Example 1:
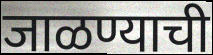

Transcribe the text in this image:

जाळण्याची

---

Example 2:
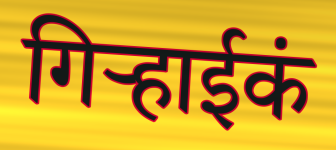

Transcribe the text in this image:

गिऱ्हाईकं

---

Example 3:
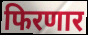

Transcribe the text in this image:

फिरणार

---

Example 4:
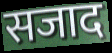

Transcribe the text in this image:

सजाद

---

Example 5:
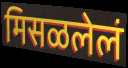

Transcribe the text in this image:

मिसळलेलं